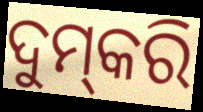
ଦୁମ୍‍କରି